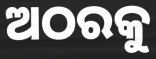
ଅଠରକୁ